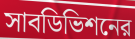
সাবডিভিশনের